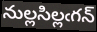
నుల్లసిల్లఁగన్